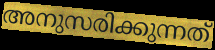
അനുസരിക്കുന്നത്